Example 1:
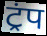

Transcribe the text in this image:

ट्रंप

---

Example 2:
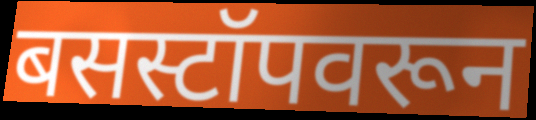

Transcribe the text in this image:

बसस्टॉपवरून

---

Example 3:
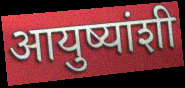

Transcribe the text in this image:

आयुष्यांशी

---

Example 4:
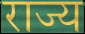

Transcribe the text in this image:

राज्य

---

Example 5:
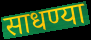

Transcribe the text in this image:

साधण्या